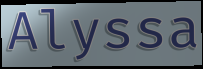
Alyssa